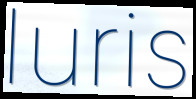
Iuris